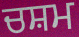
ਚਸ਼ਮ